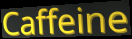
Caffeine